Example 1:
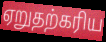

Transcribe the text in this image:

ஏறுதற்கரிய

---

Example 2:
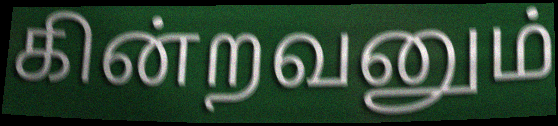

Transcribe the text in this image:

கின்றவனும்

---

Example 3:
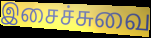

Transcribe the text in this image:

இசைச்சுவை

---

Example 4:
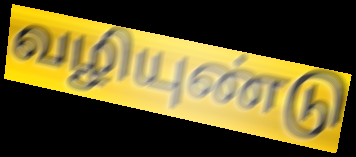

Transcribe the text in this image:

வழியுண்டு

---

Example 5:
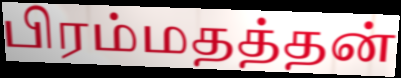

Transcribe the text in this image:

பிரம்மதத்தன்